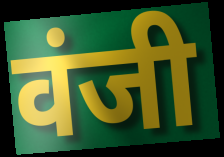
वंजी